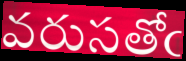
వరుసతోఁ